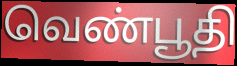
வெண்பூதி